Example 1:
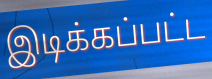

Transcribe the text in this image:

இடிக்கப்பட்ட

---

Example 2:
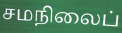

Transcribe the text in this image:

சமநிலைப்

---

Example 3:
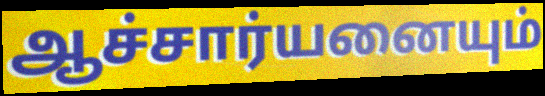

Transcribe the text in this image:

ஆச்சார்யனையும்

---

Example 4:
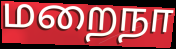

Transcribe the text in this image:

மறைநா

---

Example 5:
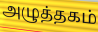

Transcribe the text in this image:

அழுத்தகம்